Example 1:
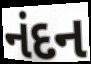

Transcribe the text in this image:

નંદન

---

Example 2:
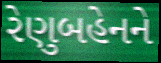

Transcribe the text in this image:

રેણુબહેનને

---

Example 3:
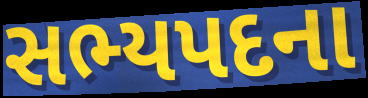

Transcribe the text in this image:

સભ્યપદના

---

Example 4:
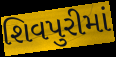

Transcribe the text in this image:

શિવપુરીમાં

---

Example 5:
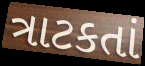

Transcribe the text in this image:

ત્રાટકતાં